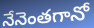
నేనెంతగానో